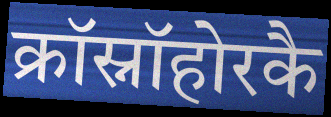
क्रॉस्नॉहोरकै